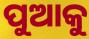
ପୁଆକୁ